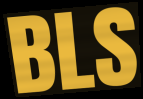
BLS